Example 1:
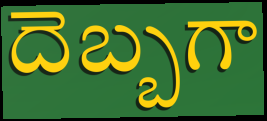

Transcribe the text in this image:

దెబ్బగా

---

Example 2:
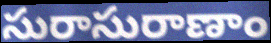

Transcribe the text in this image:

సురాసురాణాం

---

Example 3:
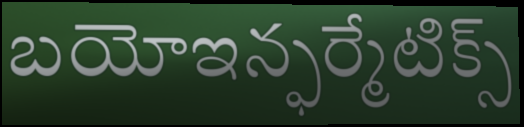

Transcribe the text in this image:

బయోఇన్ఫర్మేటిక్స్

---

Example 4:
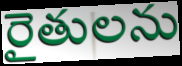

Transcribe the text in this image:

రైతులను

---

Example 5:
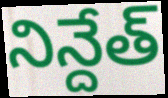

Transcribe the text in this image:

నిన్దేత్